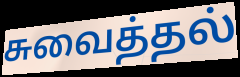
சுவைத்தல்